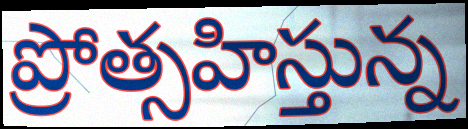
ప్రోత్సహిస్తున్న